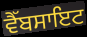
ਵੈੱਬਸਾਇਟ